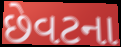
છેવટના